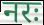
नरः